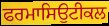
ਫਰਮਾਸਿਉਟੀਕਲ